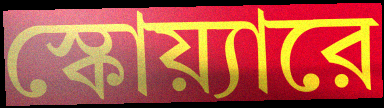
স্কোয়্যারে